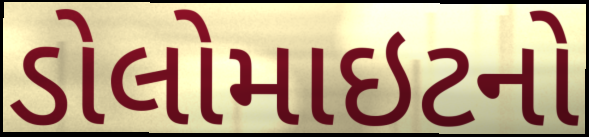
ડોલોમાઇટનો